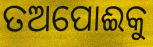
ତଅପୋଈକୁ